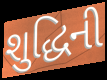
શુદ્ધિની